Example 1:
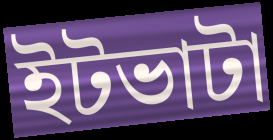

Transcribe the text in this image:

ইটভাটা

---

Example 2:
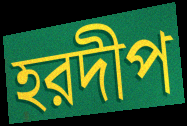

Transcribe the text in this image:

হরদীপ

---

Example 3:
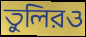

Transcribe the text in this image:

তুলিরও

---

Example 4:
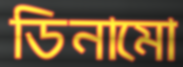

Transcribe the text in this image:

ডিনামো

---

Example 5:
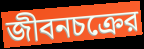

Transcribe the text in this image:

জীবনচক্রের